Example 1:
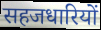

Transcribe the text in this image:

सहजधारियों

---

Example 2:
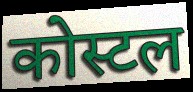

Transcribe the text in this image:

कोस्टल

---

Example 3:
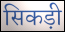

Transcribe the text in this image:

सिकड़ी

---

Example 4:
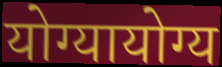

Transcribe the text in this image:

योग्यायोग्य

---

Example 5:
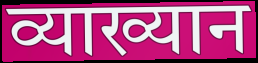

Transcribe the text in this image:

व्याख्यान